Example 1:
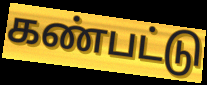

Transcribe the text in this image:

கண்பட்டு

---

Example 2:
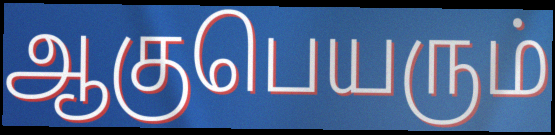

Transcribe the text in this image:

ஆகுபெயரும்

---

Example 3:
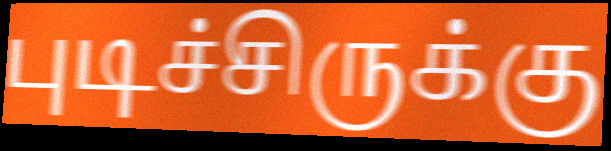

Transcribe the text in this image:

புடிச்சிருக்கு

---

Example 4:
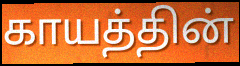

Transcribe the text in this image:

காயத்தின்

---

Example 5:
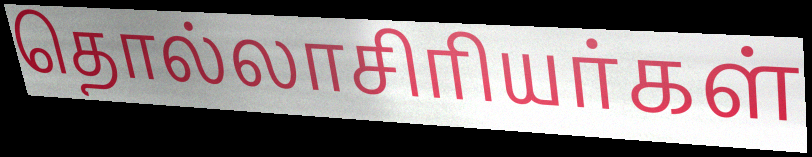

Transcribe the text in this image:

தொல்லாசிரியர்கள்